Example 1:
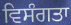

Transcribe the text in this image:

ਵਿਸੰਗਤਾ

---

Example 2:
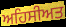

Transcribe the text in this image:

ਅਹਿਸੀਅਤ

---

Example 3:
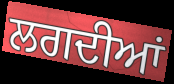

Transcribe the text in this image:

ਲਗਦੀਆਂ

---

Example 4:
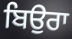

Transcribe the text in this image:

ਬਿਉਰਾ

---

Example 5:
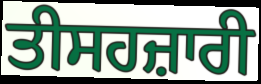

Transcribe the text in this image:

ਤੀਸਹਜ਼ਾਰੀ